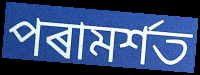
পৰামৰ্শত